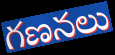
గణనలు